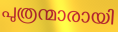
പുത്രന്മാരായി